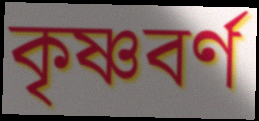
কৃষ্ণবর্ণ